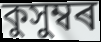
কুসুম্বৰ